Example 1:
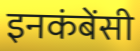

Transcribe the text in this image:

इनकंबेंसी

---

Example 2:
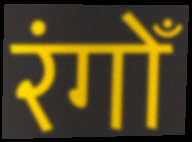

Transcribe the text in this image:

रंगोँ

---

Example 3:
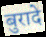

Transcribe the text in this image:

बुरादे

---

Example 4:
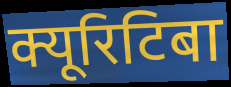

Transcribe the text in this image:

क्यूरिटिबा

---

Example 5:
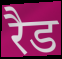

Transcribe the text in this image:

रैड